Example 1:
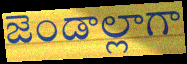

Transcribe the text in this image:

జెండాల్లాగా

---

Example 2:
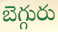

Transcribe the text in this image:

బెగ్గురు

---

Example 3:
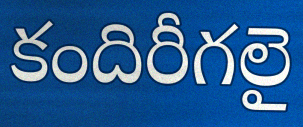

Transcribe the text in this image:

కందిరీగలై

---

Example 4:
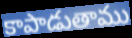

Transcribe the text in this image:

కాపాడుతాము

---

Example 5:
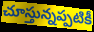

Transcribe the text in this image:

చూస్తున్నప్పటికీ